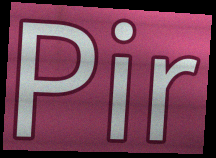
Pir